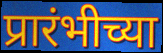
प्रारंभीच्या